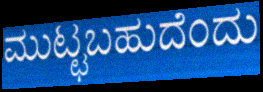
ಮುಟ್ಟಬಹುದೆಂದು